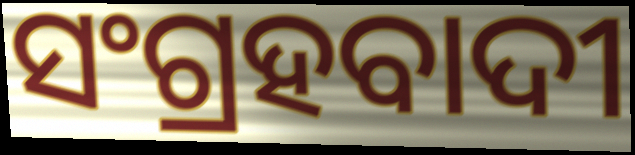
ସଂଗ୍ରହବାଦୀ